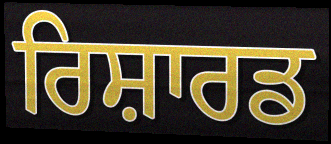
ਰਿਸ਼ਾਰਡ